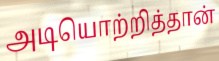
அடியொற்றித்தான்